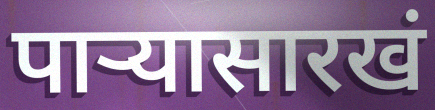
पाऱ्यासारखं